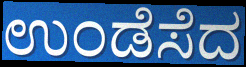
ಉಂಡೆಸೆದ